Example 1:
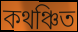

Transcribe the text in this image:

কথঞ্চিত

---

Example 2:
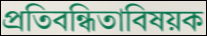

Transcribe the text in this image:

প্রতিবন্ধিতাবিষয়ক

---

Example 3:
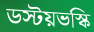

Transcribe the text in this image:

ডস্টয়ভস্কি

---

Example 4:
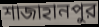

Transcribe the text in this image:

শাজাহানপুর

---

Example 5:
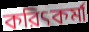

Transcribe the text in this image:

করিৎকর্মা